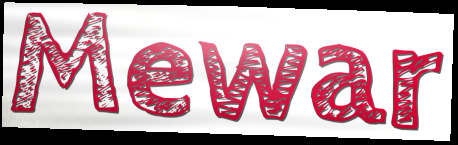
Mewar